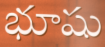
భూషు